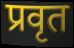
प्रवृत